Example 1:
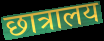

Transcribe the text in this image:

छात्रालय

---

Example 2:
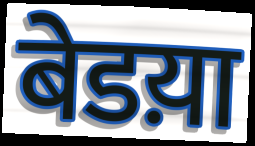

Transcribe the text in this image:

बेडय़ा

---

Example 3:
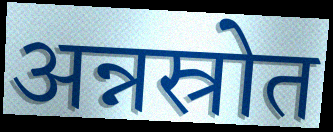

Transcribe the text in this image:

अन्नस्रोत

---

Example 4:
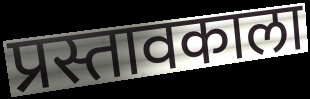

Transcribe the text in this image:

प्रस्तावकाला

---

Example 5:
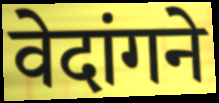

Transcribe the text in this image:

वेदांगने